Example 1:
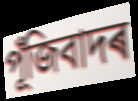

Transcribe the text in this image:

পূঁজিবাদৰ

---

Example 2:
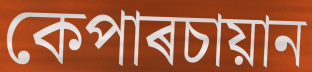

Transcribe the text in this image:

কেপাৰচায়ান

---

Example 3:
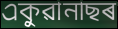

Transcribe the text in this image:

একুৱানাছৰ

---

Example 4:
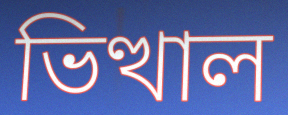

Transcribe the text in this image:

ভিত্থাল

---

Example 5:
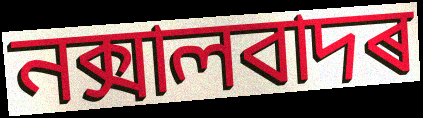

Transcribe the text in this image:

নক্সালবাদৰ